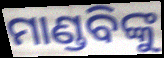
ମାଣ୍ଡବିଙ୍କୁ